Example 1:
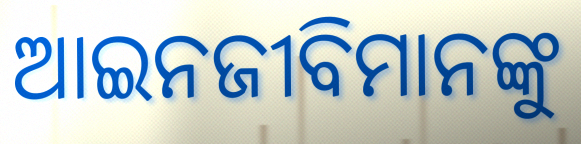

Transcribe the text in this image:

ଆଇନଜୀବିମାନଙ୍କୁ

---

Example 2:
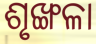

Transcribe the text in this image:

ଶୃଙ୍ଖଳା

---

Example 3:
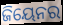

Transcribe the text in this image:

ଜିୟେନର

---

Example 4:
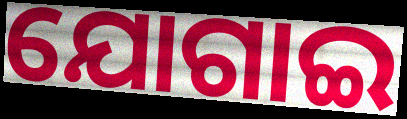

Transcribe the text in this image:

ଯୋଗାଇ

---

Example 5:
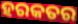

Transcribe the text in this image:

ହରକତର